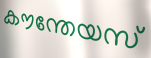
കൗന്തേയസ്